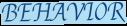
BEHAVIOR